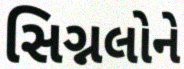
સિગ્નલોને